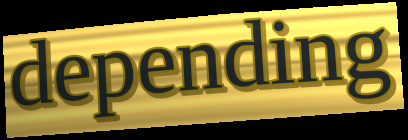
depending